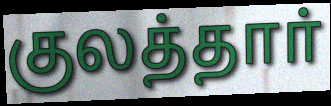
குலத்தார்